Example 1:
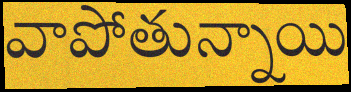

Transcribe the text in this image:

వాపోతున్నాయి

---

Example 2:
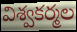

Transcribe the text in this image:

విశ్వకర్మల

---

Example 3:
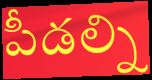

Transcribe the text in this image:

పీడల్ని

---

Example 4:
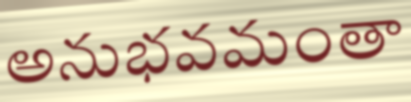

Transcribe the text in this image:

అనుభవమంతా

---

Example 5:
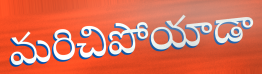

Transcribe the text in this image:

మరిచిపోయాడా